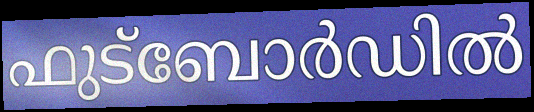
ഫുട്ബോർഡിൽ